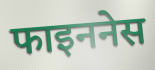
फाइननेस